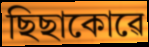
ছিছাকোৱে